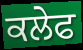
ਕਲੇਫ